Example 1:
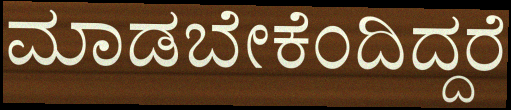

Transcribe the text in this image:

ಮಾಡಬೇಕೆಂದಿದ್ದರೆ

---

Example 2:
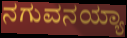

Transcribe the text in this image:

ನಗುವನಯ್ಯಾ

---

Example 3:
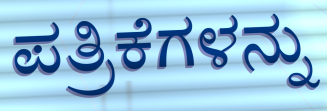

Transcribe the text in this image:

ಪತ್ರಿಕೆಗಳನ್ನು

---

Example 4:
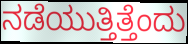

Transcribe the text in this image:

ನಡೆಯುತ್ತಿತ್ತೆಂದು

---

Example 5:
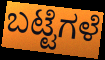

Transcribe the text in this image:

ಬಟ್ಟೆಗಳೆ